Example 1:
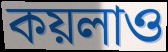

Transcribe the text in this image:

কয়লাও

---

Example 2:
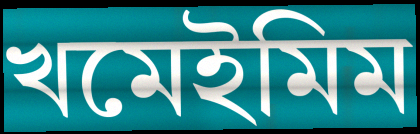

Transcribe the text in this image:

খমেইমিম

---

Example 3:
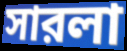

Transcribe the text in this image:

সারলা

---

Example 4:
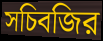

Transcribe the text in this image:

সচিবজির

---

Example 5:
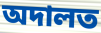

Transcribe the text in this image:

অদালত